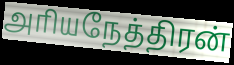
அரியநேத்திரன்